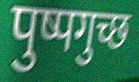
पुष्पगुच्छ